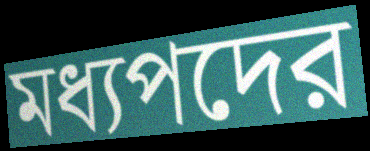
মধ্যপদের